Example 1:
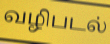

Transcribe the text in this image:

வழிபடல்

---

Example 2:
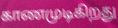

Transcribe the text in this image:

காணமுடிகிறது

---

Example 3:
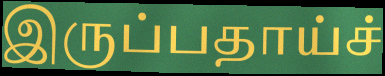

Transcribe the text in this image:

இருப்பதாய்ச்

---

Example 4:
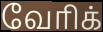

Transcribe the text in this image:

வேரிக்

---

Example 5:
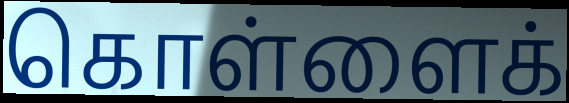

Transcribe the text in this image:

கொள்ளைக்